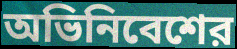
অভিনিবেশের